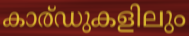
കാര്ഡുകളിലും